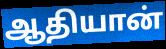
ஆதியான்